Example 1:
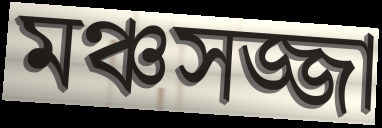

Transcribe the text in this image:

মঞ্চসজ্জা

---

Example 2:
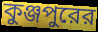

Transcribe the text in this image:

কুঞ্জপুরের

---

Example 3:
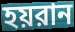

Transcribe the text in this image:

হয়রান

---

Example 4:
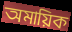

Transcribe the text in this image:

অমায়িক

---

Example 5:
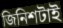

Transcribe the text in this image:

জিনিশটাই